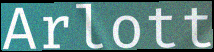
Arlott